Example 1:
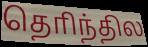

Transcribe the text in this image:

தெரிந்தில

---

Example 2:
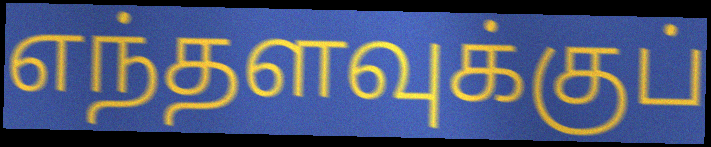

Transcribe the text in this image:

எந்தளவுக்குப்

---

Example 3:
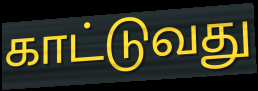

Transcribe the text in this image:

காட்டுவது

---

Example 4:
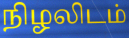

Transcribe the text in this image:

நிழலிடம்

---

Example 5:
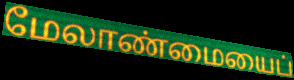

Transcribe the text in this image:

மேலாண்மையைப்